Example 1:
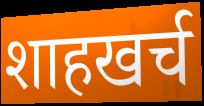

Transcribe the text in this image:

शाहखर्च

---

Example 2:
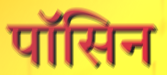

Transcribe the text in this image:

पॉसिन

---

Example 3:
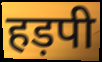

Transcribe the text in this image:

हड़पी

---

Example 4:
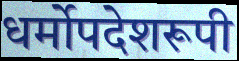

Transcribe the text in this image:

धर्मोपदेशरूपी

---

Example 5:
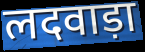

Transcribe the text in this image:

लदवाड़ा